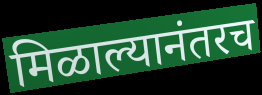
मिळाल्यानंतरच